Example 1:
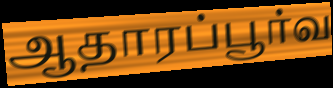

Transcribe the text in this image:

ஆதாரப்பூர்வ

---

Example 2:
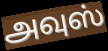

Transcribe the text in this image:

அவுஸ்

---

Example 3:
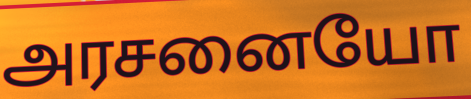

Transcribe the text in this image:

அரசனையோ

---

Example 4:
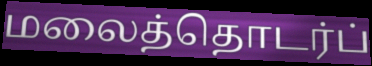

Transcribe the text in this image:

மலைத்தொடர்ப்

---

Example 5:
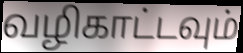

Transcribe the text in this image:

வழிகாட்டவும்